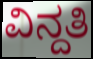
ವಿನ್ದತಿ